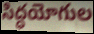
సిద్ధయోగుల